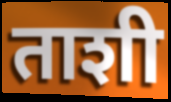
ताशी